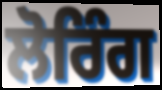
ਲੋਰਿੰਗ